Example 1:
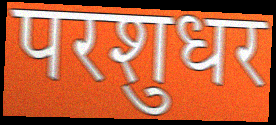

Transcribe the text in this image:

परशुधर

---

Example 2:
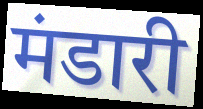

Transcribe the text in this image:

मंडारी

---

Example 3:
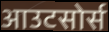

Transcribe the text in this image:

आउटसोर्स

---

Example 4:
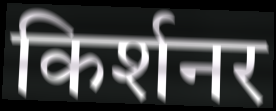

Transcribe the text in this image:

किर्शनर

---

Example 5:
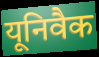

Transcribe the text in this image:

यूनिवैक